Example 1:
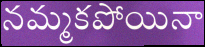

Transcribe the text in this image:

నమ్మకపోయినా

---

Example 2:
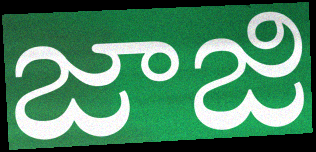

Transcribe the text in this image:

జాజి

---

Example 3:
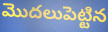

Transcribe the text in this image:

మొదలుపెట్టిన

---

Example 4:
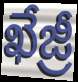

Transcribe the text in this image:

ఖేజ్రీ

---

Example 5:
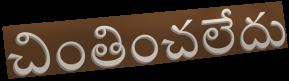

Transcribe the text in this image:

చింతించలేదు